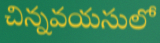
చిన్నవయసులో